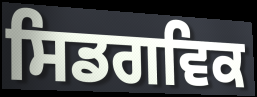
ਸਿਡਗਵਿਕ